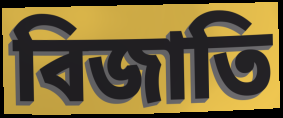
বিজাতি